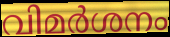
വിമർശനം